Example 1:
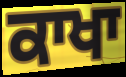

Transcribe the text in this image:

ਕਾਖਾ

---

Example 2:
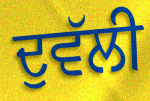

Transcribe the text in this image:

ਦੁਵੱਲੀ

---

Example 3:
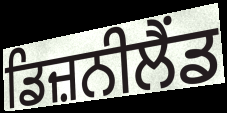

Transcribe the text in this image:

ਡਿਜ਼ਨੀਲੈਂਡ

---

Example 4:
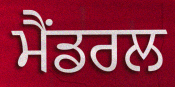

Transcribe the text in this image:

ਮੈਂਡਰਲ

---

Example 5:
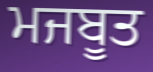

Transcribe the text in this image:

ਮਜਬੂਤ